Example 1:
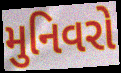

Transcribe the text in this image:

મુનિવરો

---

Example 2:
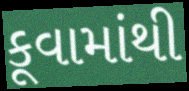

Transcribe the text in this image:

કૂવામાંથી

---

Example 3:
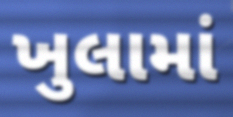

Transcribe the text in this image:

ખુલામાં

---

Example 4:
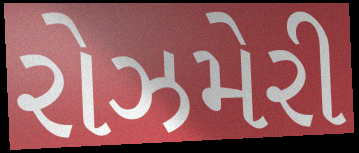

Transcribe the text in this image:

રોઝમેરી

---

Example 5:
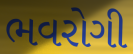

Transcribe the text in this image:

ભવરોગી